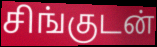
சிங்குடன்